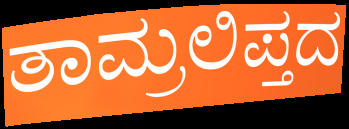
ತಾಮ್ರಲಿಪ್ತದ